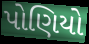
પોણિયો